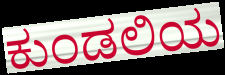
ಕುಂಡಲಿಯ